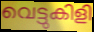
വെട്ടുകിളി